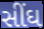
સીંઘ